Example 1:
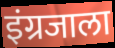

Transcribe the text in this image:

इंग्रजाला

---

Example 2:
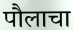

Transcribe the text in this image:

पौलाचा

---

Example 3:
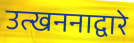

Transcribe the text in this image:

उत्खननाद्वारे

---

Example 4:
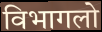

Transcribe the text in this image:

विभागलो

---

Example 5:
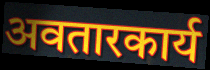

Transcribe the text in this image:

अवतारकार्य